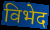
विभेद